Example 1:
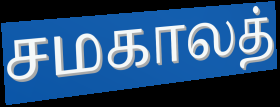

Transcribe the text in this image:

சமகாலத்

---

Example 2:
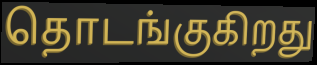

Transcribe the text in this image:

தொடங்குகிறது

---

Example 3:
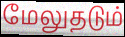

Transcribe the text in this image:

மேலுதடும்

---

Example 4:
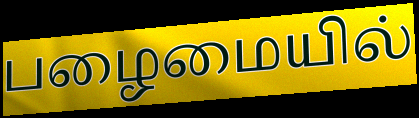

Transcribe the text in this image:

பழைமையில்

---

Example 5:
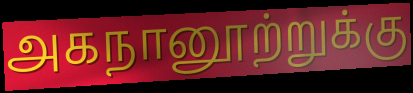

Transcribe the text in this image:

அகநானூற்றுக்கு